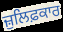
ਜ਼ੁਲਿਫ਼ਕਾਰ